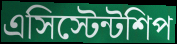
এসিস্টেন্টশিপ